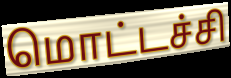
மொட்டச்சி